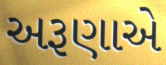
અરૂણાએ